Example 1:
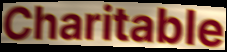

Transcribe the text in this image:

Charitable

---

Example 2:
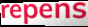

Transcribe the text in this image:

repens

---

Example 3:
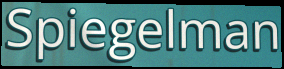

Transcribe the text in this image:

Spiegelman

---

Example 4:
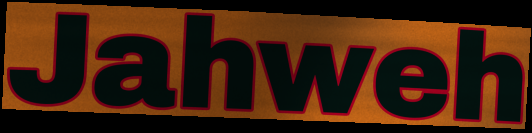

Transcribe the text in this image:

Jahweh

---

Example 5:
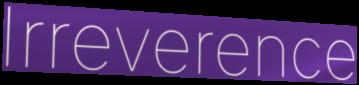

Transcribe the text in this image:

Irreverence